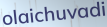
olaichuvadi